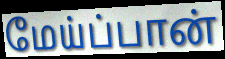
மேய்ப்பான்